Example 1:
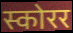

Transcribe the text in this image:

स्कोरर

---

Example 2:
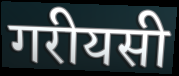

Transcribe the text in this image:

गरीयसी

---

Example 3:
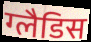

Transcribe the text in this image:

ग्लैडिस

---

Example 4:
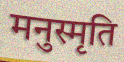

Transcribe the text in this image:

मनुस्मृति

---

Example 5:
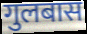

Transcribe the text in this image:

गुलबास